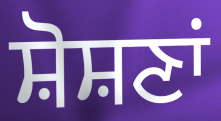
ਸ਼ੋਸ਼ਣਾਂ